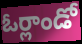
ఓర్లాండో